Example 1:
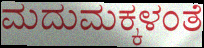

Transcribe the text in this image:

ಮದುಮಕ್ಕಳಂತೆ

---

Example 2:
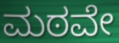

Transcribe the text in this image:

ಮಠವೇ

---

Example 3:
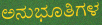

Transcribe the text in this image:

ಅನುಭೂತಿಗಳ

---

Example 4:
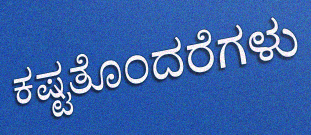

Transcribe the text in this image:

ಕಷ್ಟತೊಂದರೆಗಳು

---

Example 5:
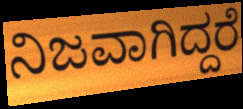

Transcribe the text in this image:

ನಿಜವಾಗಿದ್ದರೆ